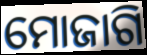
ମୋଜାଗି